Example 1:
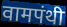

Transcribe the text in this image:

वामपंथी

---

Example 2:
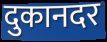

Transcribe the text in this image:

दुकानदर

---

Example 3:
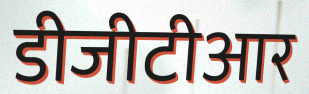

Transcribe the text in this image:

डीजीटीआर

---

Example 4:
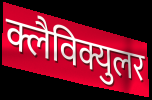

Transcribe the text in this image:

क्लैविक्युलर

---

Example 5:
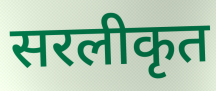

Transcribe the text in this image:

सरलीकृत